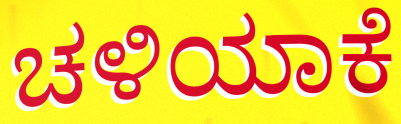
ಚಳಿಯಾಕೆ